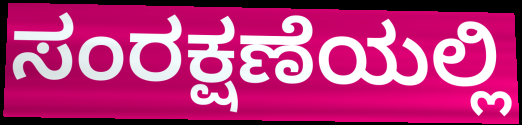
ಸಂರಕ್ಷಣೆಯಲ್ಲಿ